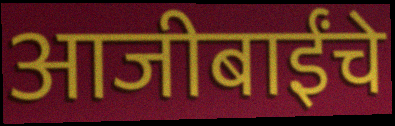
आजीबाईंचे